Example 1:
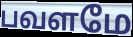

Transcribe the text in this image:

பவளமே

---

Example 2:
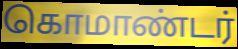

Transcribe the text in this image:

கொமாண்டர்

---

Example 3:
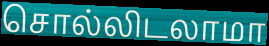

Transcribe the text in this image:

சொல்லிடலாமா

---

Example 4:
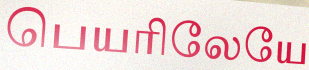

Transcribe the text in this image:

பெயரிலேயே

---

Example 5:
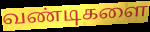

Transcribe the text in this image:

வண்டிகளை